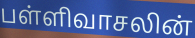
பள்ளிவாசலின்